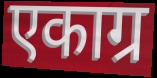
एकाग्र